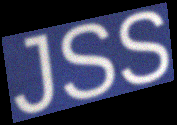
JSS